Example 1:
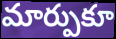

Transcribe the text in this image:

మార్పుకూ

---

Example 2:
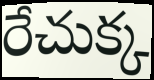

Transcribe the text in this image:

రేచుక్క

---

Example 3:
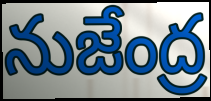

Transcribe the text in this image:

నుజేంద్ర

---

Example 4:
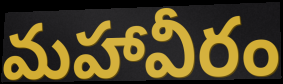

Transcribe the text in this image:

మహావీరం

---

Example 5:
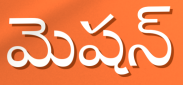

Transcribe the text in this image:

మెషన్